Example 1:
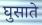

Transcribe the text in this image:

घुसाते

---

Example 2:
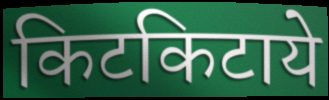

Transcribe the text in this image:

किटकिटाये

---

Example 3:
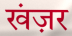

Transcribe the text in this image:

खंज़र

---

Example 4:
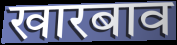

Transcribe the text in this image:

खारबाव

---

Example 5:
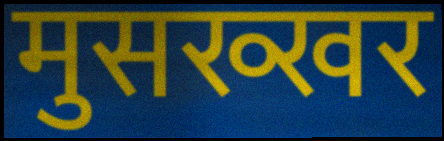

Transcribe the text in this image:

मुसख्खर